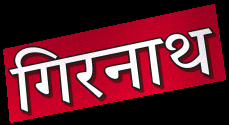
गिरनाथ